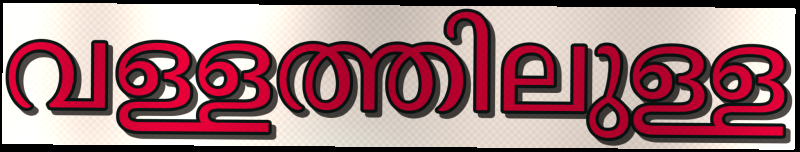
വള്ളത്തിലുള്ള